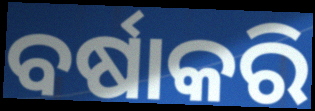
ବର୍ଷାକରି